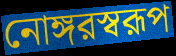
নোঙ্গরস্বরূপ